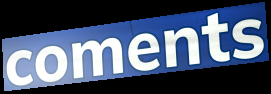
coments